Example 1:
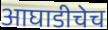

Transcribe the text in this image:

आघाडीचेच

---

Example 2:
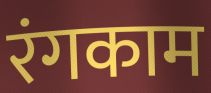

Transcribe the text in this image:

रंगकाम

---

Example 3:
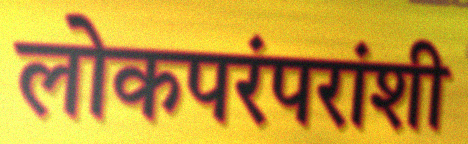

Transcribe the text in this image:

लोकपरंपरांशी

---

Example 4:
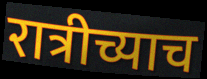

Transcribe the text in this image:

रात्रीच्याच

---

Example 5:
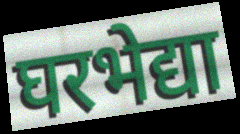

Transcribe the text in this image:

घरभेद्या